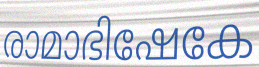
രാമാഭിഷേകേ